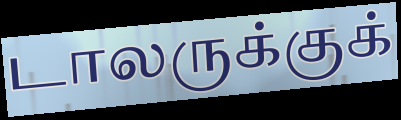
டாலருக்குக்